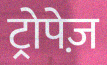
ट्रोपेज़